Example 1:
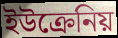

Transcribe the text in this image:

ইউক্রেনিয়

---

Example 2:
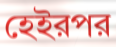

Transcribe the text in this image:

হেইরপর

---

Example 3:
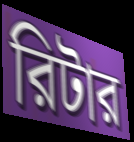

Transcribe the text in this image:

রিটার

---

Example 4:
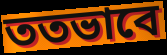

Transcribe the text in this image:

ততভাবে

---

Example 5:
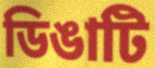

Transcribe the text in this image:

ডিঙাটি